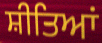
ਸ਼ੀਤਿਆਂ